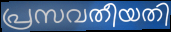
പ്രസവതീയതി